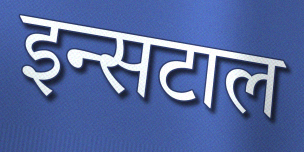
इन्सटाल